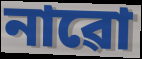
নাৱো